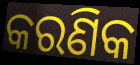
କରଣିକ